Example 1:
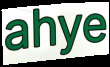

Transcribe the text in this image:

ahye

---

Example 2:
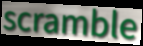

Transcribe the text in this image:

scramble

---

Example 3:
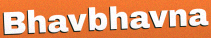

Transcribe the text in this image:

Bhavbhavna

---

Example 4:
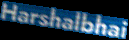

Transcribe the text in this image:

Harshalbhai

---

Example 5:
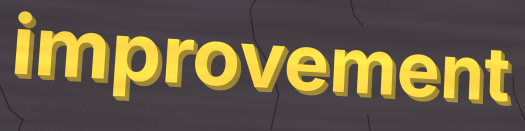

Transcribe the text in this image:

improvement